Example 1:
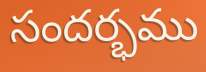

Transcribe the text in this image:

సందర్భము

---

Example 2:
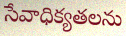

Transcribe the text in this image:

సేవాధిక్యతలను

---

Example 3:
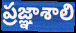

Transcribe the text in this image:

ప్రజ్ఞాశాలి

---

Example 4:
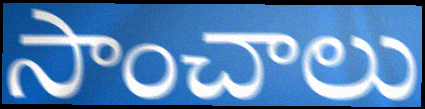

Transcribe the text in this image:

సాంచాలు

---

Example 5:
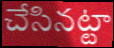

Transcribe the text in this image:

చేసినట్టా